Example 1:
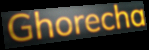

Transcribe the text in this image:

Ghorecha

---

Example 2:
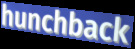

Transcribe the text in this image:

hunchback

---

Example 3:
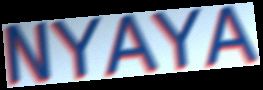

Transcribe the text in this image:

NYAYA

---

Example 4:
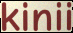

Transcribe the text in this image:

kinii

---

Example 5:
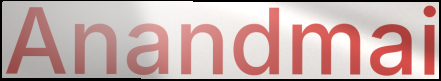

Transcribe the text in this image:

Anandmai